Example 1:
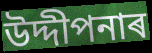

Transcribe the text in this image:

উদ্দীপনাৰ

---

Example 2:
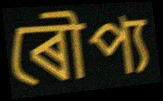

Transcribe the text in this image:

ৰৌপ্য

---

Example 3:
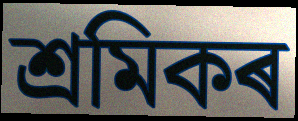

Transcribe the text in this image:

শ্ৰমিকৰ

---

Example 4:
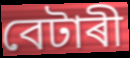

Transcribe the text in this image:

বেটাৰী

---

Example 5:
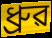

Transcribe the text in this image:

ধ্ৰুৱ